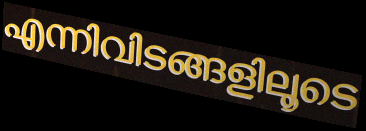
എന്നിവിടങ്ങളിലൂടെ